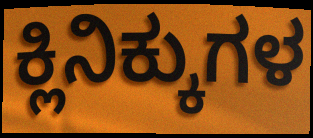
ಕ್ಲಿನಿಕ್ಕುಗಳ